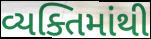
વ્યક્તિમાંથી